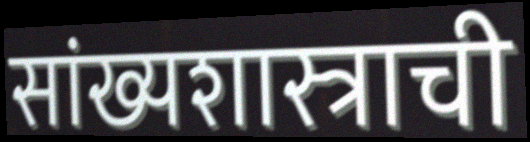
सांख्यशास्त्राची